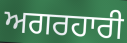
ਅਗਰਹਾਰੀ